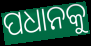
ପଧାନକୁ